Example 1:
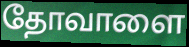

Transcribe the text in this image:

தோவாளை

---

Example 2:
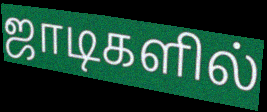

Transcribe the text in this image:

ஜாடிகளில்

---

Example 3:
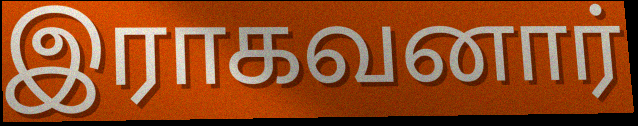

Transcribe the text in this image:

இராகவனார்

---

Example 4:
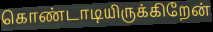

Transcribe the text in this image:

கொண்டாடியிருக்கிறேன்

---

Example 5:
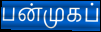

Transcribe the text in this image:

பன்முகப்